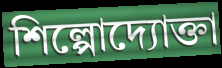
শিল্পোদ্যোক্তা